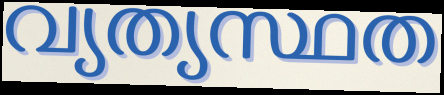
വ്യത്യസ്ഥത